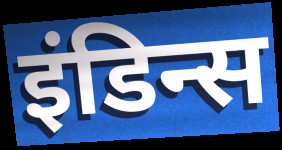
इंडिन्स